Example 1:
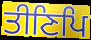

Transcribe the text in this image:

ਤੀਣਿਪਿ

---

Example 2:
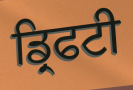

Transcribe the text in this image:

ਡ੍ਰਿਫਟੀ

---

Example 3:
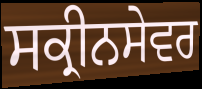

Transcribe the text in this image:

ਸਕ੍ਰੀਨਸੇਵਰ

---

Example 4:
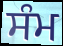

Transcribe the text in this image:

ਸੰਮ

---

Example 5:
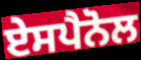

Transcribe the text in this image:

ਏਸਪੈਨੋਲ